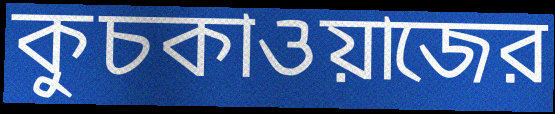
কুচকাওয়াজের